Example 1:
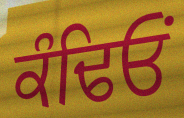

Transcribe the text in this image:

ਕੰਢਿਓਂ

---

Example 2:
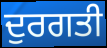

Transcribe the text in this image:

ਦੁਰਗਤੀ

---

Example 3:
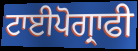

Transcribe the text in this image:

ਟਾਈਪੋਗ੍ਰਾਫੀ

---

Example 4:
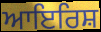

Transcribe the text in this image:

ਆਇਰਿਸ਼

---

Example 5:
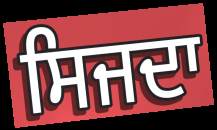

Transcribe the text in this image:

ਸਿਜਦਾ